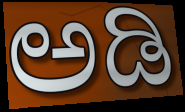
ಅಡಿ